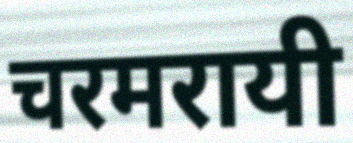
चरमरायी